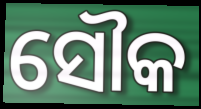
ସୌକ